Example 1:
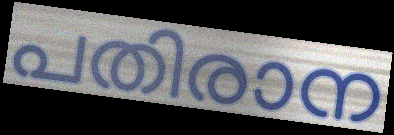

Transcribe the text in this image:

പതിരാന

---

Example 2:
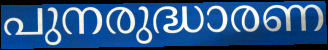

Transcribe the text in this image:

പുനരുദ്ധാരണ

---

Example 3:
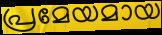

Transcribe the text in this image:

പ്രമേയമായ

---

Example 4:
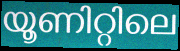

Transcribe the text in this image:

യൂണിറ്റിലെ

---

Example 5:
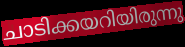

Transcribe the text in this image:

ചാടിക്കയറിയിരുന്നു